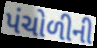
પંચોળીની